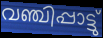
വഞ്ചിപ്പാട്ടു്